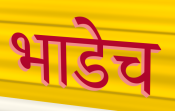
भाडेच